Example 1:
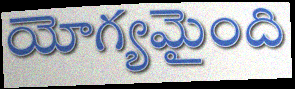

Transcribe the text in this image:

యోగ్యమైంది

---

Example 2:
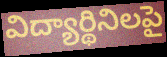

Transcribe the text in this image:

విద్యార్థినిలపై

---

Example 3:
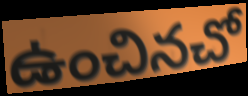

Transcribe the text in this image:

ఉంచినచో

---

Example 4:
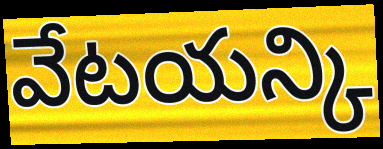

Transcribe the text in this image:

వేటయన్కి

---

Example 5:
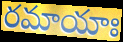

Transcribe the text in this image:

రమాయాః